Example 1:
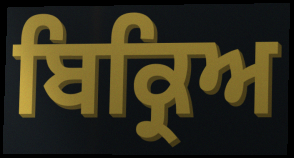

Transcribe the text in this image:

ਬਿਕ੍ਰਿਅ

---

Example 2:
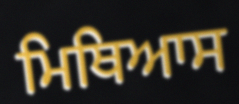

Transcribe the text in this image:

ਮਿਥਿਆਸ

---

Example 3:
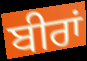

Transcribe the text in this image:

ਬੀਰਾਂ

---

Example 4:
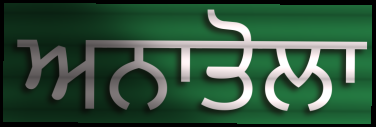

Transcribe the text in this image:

ਅਨਾਤੋਲਾ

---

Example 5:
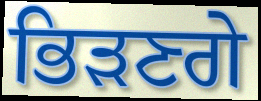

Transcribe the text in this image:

ਭਿੜਣਗੇ